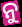
ନୁ